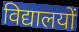
विद्यालयों